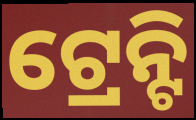
ଟ୍ରେନ୍ଟି